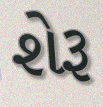
શેરૂ